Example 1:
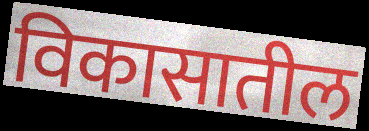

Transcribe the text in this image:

विकासातील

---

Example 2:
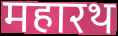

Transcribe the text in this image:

महारथ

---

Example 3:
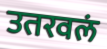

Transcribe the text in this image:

उतरवलं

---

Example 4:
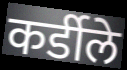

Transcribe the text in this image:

कर्डीले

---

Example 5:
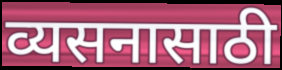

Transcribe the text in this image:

व्यसनासाठी